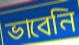
ভাবেনি